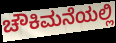
ಚೌಕಿಮನೆಯಲ್ಲಿ